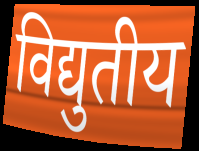
विद्युतीय